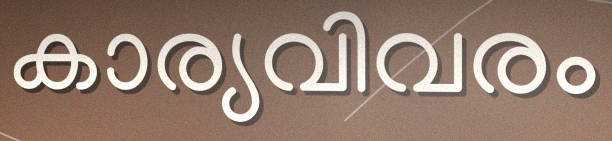
കാര്യവിവരം